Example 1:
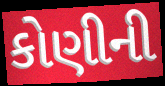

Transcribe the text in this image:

કોણીની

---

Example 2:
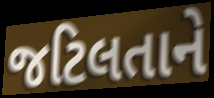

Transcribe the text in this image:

જટિલતાને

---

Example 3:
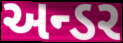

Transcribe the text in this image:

અન્ડર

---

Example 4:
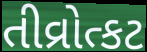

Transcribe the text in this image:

તીવ્રોત્કટ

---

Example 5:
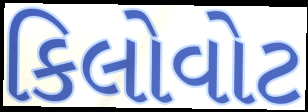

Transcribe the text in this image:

કિલોવોટ